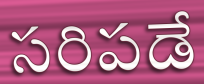
సరిపడే